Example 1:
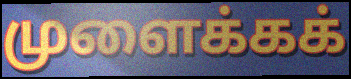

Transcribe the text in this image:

முளைக்கக்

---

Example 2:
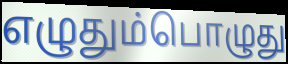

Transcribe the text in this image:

எழுதும்பொழுது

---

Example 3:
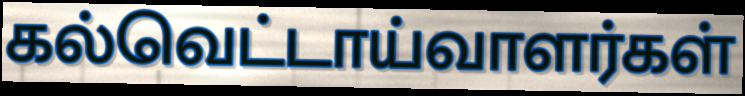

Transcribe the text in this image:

கல்வெட்டாய்வாளர்கள்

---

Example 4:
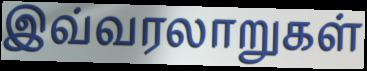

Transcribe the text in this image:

இவ்வரலாறுகள்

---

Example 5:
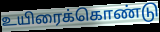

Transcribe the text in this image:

உயிரைக்கொண்டு